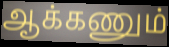
ஆக்கணும்